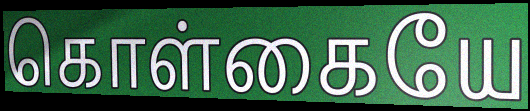
கொள்கையே